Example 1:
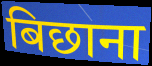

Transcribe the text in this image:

बिछाना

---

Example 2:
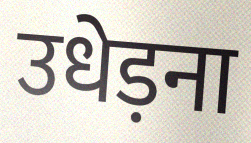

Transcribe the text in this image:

उधेड़ना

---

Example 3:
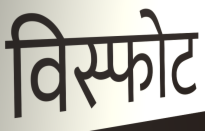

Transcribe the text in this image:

विस्फोट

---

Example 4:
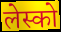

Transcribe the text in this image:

लेस्को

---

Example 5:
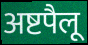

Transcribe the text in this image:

अष्टपैलू